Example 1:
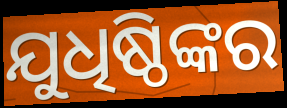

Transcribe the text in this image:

ଯୁଧିଷ୍ଠିଙ୍କର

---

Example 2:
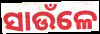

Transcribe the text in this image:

ସାଉଁଳେ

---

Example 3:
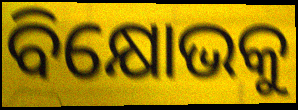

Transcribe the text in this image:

ବିକ୍ଷୋଭକୁ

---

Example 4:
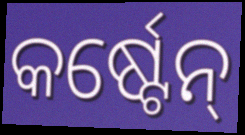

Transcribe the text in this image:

କର୍ଷ୍ଟେନ୍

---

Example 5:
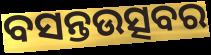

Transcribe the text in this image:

ବସନ୍ତଉତ୍ସବର